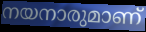
നയനാരുമാണ്